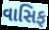
વાસિફ